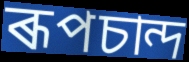
ৰূপচান্দ